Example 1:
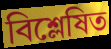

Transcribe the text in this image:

বিশ্লেষিত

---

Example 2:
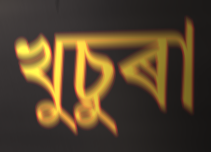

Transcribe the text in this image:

খুচুৰা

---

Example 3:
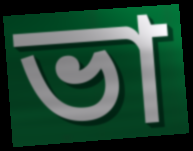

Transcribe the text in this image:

ভা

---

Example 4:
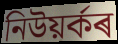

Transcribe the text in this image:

নিউয়ৰ্কৰ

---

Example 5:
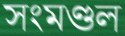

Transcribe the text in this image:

সংমণ্ডল